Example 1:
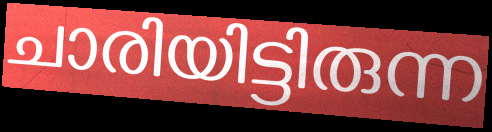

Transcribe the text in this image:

ചാരിയിട്ടിരുന്ന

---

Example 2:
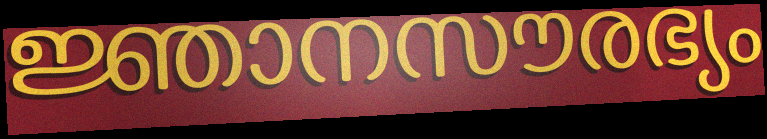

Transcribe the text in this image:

ജ്ഞാനസൗരഭ്യം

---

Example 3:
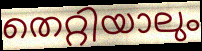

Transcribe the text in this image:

തെറ്റിയാലും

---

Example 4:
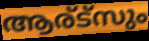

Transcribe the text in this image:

ആര്ട്സും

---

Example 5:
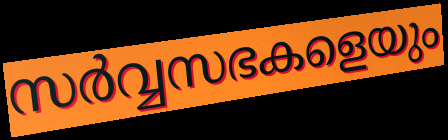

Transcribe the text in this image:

സർവ്വസഭകളെയും